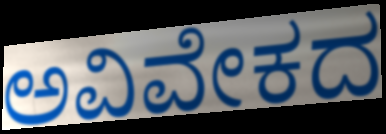
ಅವಿವೇಕದ